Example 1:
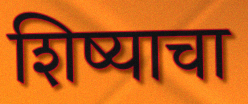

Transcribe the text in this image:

शिष्याचा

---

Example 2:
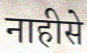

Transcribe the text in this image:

नाहीसे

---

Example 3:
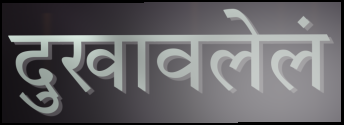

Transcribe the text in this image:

दुखावलेलं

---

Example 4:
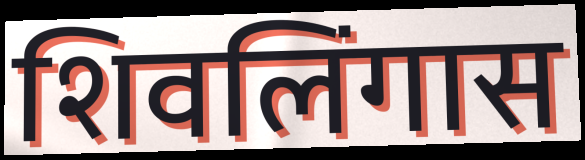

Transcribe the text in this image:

शिवलिंगास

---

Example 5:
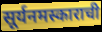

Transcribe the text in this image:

सूर्यनमस्काराची